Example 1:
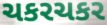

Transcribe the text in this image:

ચકરચકર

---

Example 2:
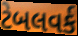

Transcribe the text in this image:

ટેબલવર્ક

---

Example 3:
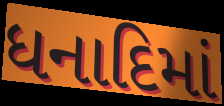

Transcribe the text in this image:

ધનાદિમાં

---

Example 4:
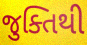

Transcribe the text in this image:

જુક્તિથી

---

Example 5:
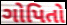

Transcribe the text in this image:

ગોપિતો